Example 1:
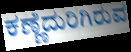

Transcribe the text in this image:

ಕಣ್ಣೆದುರಿಗಿರುವ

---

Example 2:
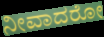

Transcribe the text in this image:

ನೀವಾದರೋ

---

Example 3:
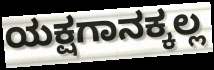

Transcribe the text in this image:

ಯಕ್ಷಗಾನಕ್ಕಲ್ಲ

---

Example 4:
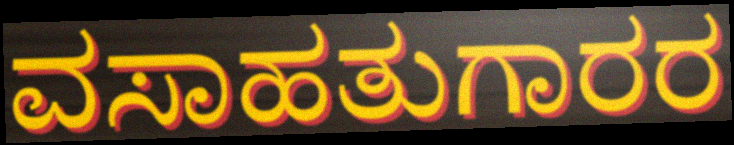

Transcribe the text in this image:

ವಸಾಹತುಗಾರರ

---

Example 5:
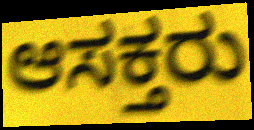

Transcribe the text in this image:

ಆಸಕ್ತರು